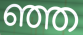
ഞ്ഞ